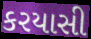
કરયાસી